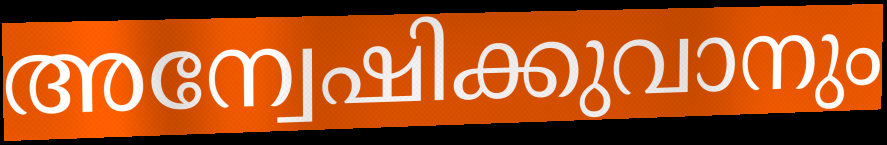
അന്വേഷിക്കുവാനും